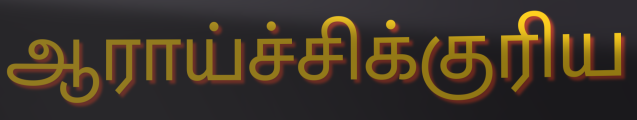
ஆராய்ச்சிக்குரிய